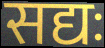
सद्यः